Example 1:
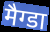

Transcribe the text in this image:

मैग्डा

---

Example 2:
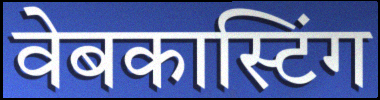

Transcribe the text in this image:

वेबकास्टिंग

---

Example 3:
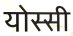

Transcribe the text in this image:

योस्सी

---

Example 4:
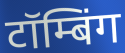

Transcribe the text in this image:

टॉम्बिंग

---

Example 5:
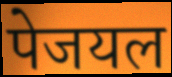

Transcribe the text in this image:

पेजयल